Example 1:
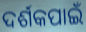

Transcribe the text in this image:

ଦର୍ଶକପାଇଁ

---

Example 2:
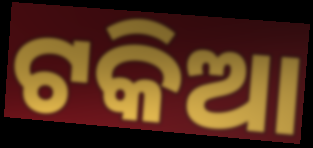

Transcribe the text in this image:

ଟକିଆ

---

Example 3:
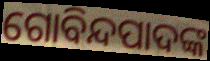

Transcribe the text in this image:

ଗୋବିନ୍ଦପାଦଙ୍କ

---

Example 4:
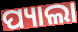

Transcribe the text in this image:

ପ୍ୟାଲା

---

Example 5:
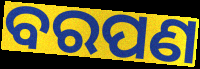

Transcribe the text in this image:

ବରପଣ